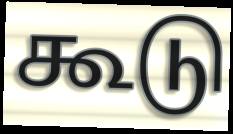
கூடு